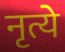
नृत्ये